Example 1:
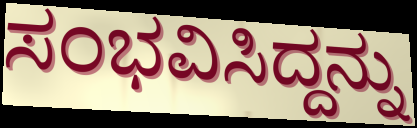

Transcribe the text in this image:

ಸಂಭವಿಸಿದ್ದನ್ನು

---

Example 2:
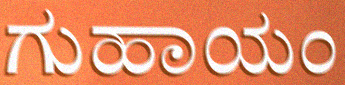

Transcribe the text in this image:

ಗುಹಾಯಂ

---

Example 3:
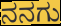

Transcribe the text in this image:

ನನಗು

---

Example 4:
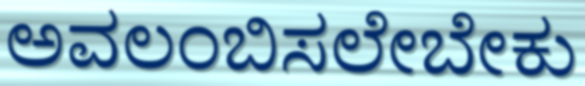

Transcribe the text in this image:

ಅವಲಂಬಿಸಲೇಬೇಕು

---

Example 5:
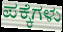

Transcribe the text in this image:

ಪಕ್ಕೆಗಳು